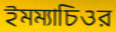
ইমম্যাচিওর